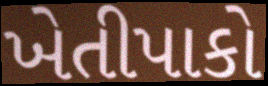
ખેતીપાકો